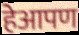
हेआपण